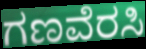
ಗಣವೆರಸಿ